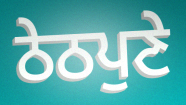
ਠੇਠਪੁਣੇ